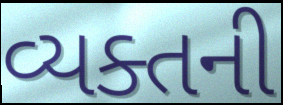
વ્યક્તની